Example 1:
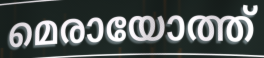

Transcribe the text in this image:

മെരായോത്ത്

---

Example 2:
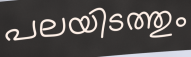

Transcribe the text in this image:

പലയിടത്തും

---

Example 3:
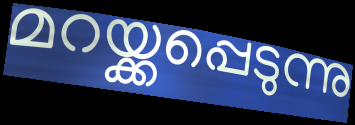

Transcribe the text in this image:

മറയ്ക്കപ്പെടുന്നു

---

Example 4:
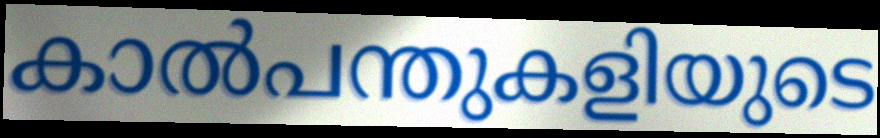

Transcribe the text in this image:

കാൽപന്തുകളിയുടെ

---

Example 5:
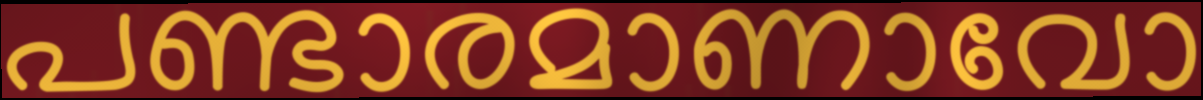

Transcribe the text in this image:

പണ്ടാരമാണാവോ